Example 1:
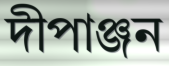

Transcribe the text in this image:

দীপাঞ্জন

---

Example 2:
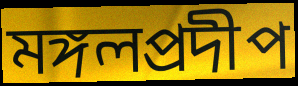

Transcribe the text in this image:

মঙ্গলপ্রদীপ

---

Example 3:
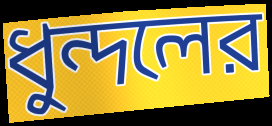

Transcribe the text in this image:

ধুন্দলের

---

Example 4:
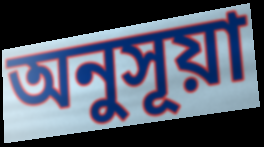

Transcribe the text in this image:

অনুসূয়া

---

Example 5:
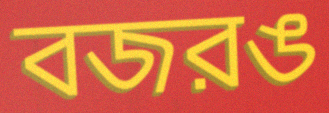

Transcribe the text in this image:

বজরঙ